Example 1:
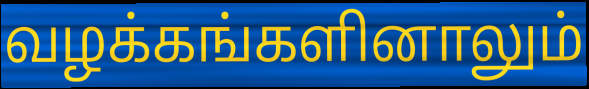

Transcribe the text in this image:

வழக்கங்களினாலும்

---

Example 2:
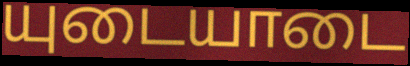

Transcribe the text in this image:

யுடையாடை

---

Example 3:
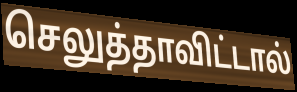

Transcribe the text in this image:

செலுத்தாவிட்டால்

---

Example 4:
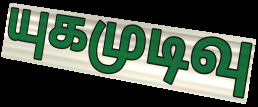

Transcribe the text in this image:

யுகமுடிவு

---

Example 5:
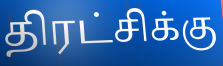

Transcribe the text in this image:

திரட்சிக்கு